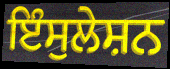
ਇੰਸੁਲੇਸ਼ਨ